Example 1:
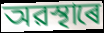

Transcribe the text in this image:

অৱস্থাৰে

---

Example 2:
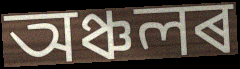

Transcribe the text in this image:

অঞ্চলৰ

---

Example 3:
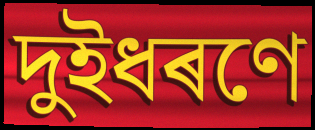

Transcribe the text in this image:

দুইধৰণে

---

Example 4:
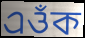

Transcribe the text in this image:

এওঁক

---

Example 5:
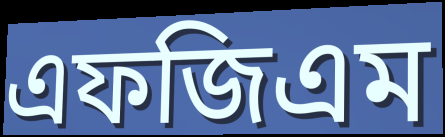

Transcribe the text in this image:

এফজিএম